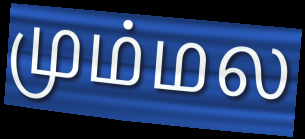
மும்மல